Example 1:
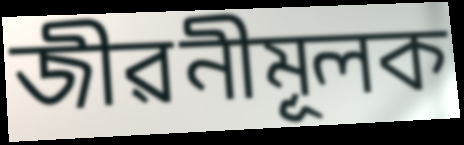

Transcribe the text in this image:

জীৱনীমূলক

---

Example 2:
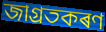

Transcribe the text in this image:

জাগ্ৰতকৰণ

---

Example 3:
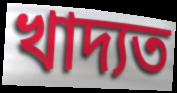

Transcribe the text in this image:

খাদ্যত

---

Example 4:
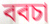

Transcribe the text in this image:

ববচা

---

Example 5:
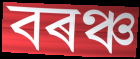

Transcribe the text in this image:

বৰঞ্চ